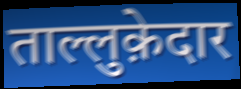
ताल्लुक़ेदार